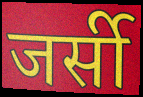
जर्सी